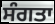
ਸੰਗਤਾ